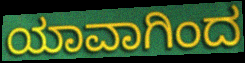
ಯಾವಾಗಿಂದ